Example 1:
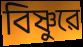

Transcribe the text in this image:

বিষ্ণুৱে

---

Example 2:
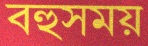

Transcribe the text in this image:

বহুসময়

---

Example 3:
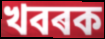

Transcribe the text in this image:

খবৰক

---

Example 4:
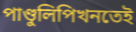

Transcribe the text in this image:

পাণ্ডুলিপিখনতেই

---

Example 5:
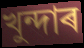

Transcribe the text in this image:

খুন্দাৰ